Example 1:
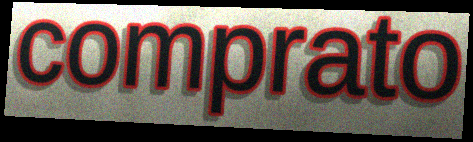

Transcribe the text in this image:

comprato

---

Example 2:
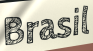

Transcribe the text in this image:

Brasil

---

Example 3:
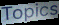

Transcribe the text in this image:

Topics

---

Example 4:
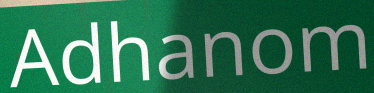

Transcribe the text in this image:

Adhanom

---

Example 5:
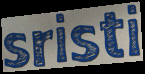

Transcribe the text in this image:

sristi